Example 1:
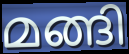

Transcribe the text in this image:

മങ്ങി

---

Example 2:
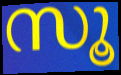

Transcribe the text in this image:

സൂ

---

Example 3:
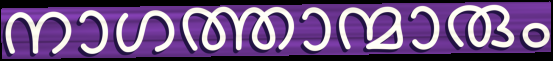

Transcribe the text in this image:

നാഗത്താന്മാരും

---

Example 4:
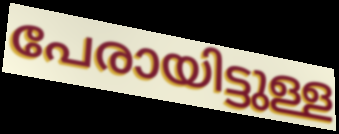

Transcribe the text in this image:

പേരായിട്ടുള്ള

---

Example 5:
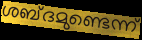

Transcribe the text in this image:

ശബ്ദമുണ്ടെന്ന്